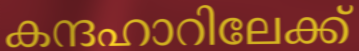
കന്ദഹാറിലേക്ക്